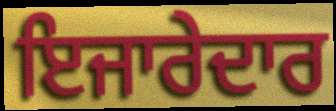
ਇਜਾਰੇਦਾਰ